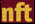
nft